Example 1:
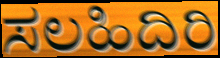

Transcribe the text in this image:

ಸಲಹಿದಿರಿ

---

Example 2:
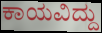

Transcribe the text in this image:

ಕಾಯವಿದ್ದು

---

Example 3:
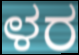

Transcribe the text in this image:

ಳರ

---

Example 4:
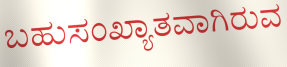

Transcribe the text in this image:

ಬಹುಸಂಖ್ಯಾತವಾಗಿರುವ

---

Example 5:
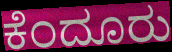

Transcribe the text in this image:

ಕೆಂದೂರು